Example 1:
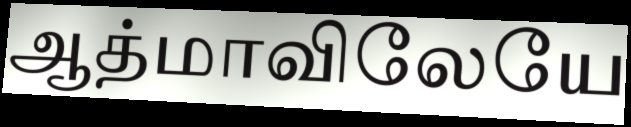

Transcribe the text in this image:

ஆத்மாவிலேயே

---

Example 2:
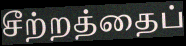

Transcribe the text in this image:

சீற்றத்தைப்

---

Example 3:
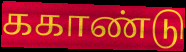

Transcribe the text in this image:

ககாண்டு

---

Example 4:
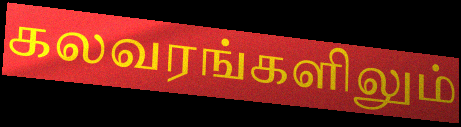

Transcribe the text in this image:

கலவரங்களிலும்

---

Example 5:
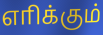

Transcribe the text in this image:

எரிக்கும்